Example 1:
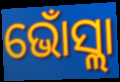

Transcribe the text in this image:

ଭୋଁସ୍ଲା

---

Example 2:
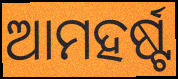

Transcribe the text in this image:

ଆମହର୍ଷ୍ଟ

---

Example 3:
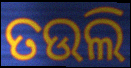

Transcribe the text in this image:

ତଉଲି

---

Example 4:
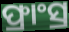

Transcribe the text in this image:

ଫ୍ରାଂସ୍ର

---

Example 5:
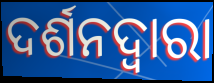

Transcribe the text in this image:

ଦର୍ଶନଦ୍ୱାରା